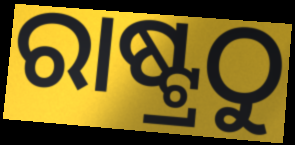
ରାଷ୍ଟ୍ରଠୁ